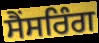
ਸੈਂਸਰਿੰਗ